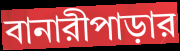
বানারীপাড়ার